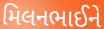
મિલનભાઈને